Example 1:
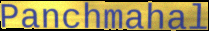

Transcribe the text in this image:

Panchmahal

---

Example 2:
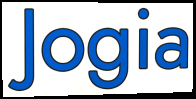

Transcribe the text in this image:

Jogia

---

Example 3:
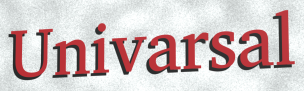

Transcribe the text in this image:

Univarsal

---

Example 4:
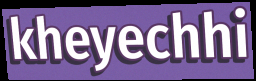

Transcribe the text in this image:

kheyechhi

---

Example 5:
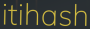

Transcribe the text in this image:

itihash